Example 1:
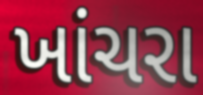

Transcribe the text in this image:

ખાંચરા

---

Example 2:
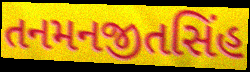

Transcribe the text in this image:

તનમનજીતસિંહ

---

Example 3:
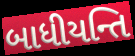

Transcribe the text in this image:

બાધીયન્તિ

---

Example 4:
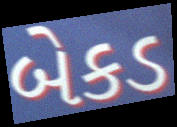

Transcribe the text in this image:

બેકડ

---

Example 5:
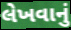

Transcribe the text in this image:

લેખવાનું